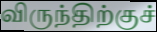
விருந்திற்குச்